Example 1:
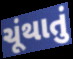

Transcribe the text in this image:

ચૂંથાતું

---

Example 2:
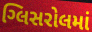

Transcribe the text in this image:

ગ્લિસરોલમાં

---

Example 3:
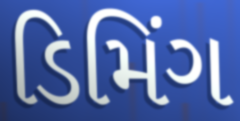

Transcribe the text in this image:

ડિમિંગ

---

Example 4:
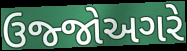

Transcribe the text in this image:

ઉજ્જોઅગરે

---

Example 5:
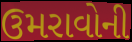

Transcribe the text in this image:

ઉમરાવોની